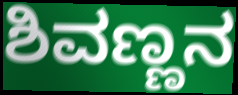
ಶಿವಣ್ಣನ